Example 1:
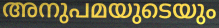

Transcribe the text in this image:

അനുപമയുടെയും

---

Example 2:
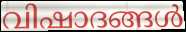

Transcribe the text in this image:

വിഷാദങ്ങൾ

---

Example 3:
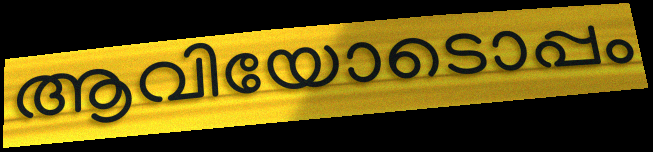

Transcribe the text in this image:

ആവിയോടൊപ്പം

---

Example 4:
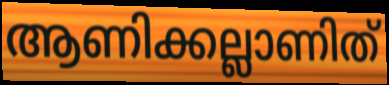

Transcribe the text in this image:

ആണിക്കല്ലാണിത്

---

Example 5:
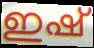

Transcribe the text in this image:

ഇഷ്